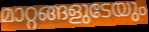
മാറ്റങ്ങളുടേയും